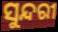
ସୁନ୍ଦରୀ